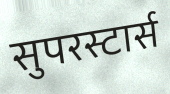
सुपरस्‍टार्स